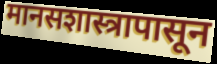
मानसशास्त्रापासून